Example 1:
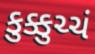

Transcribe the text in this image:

કુક્કુચ્ચં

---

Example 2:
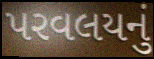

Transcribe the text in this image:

પરવલયનું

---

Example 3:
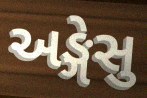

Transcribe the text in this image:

અઙ્ગેસુ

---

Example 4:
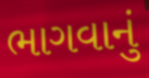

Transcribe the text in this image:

ભાગવાનું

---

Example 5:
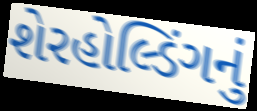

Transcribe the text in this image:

શેરહોલ્ડિંગનું